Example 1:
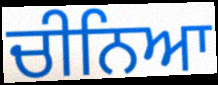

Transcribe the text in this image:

ਚੀਨਿਆ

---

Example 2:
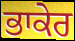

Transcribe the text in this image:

ਭਾਕੇਰ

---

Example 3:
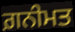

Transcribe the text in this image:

ਗ਼ਨੀਮਤ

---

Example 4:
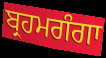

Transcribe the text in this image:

ਬ੍ਰਹਮਗੰਗਾ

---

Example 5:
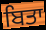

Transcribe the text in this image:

ਬਿਤਾ